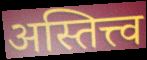
अस्तित्त्व